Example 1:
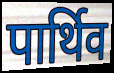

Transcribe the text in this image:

पार्थिव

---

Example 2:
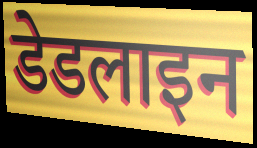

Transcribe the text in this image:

डेडलाइन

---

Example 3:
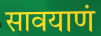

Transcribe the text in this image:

सावयाणं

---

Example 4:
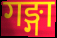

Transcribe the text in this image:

गङ्गा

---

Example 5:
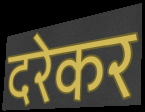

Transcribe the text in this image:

दरेकर